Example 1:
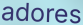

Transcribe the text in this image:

adores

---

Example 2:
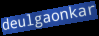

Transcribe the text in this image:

deulgaonkar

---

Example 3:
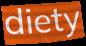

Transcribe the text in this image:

diety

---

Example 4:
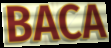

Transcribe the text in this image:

BACA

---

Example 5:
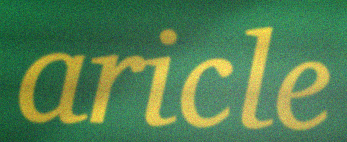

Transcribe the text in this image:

aricle